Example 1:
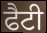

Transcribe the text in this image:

ਫੈਟੀ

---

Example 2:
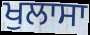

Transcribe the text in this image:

ਖੁਲਾਸਾ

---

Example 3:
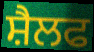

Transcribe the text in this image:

ਸ਼ੈਲਫ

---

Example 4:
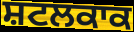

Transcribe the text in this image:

ਸ਼ਟਲਕਾਕ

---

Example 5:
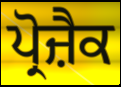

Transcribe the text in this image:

ਪ੍ਰੋਜ਼ੈਕ